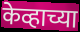
केव्हाच्या